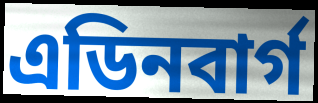
এডিনবাৰ্গ